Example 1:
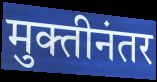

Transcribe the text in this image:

मुक्तीनंतर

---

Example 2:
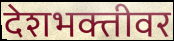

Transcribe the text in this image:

देशभक्तीवर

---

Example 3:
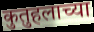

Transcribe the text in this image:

कुतुहलाच्या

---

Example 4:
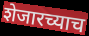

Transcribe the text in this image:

शेजारच्याच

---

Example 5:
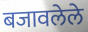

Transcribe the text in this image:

बजावलेले